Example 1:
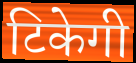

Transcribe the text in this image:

टिकेगी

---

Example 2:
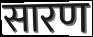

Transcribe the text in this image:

सारण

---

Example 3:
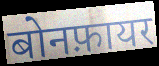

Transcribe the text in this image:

बोनफ़ायर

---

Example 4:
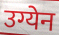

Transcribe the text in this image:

उग्येन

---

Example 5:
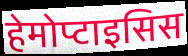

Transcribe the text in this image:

हेमोप्टाइसिस